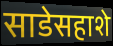
साडेसहाशे